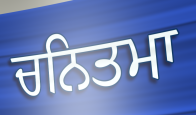
ਚਨਿਤਮਾ